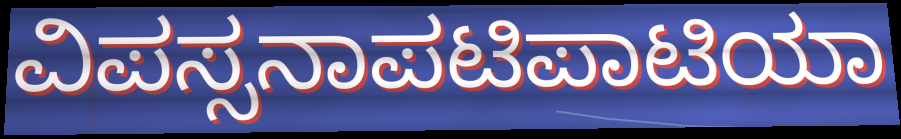
ವಿಪಸ್ಸನಾಪಟಿಪಾಟಿಯಾ